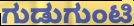
ಗುಡುಗುಂಟಿ